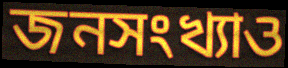
জনসংখ্যাও